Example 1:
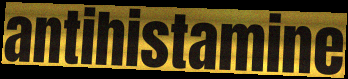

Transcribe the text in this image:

antihistamine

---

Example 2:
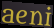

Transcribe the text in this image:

aeni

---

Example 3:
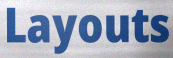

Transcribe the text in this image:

Layouts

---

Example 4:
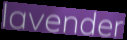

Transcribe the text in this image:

lavender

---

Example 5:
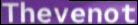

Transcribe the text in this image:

Thevenot